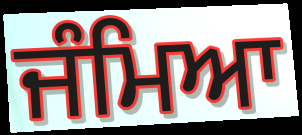
ਜੰਮਿਆ